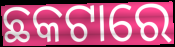
ଛକଟାରେ